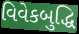
વિવેકબુદ્ધિ